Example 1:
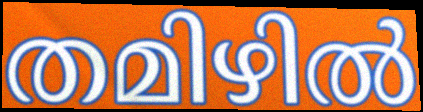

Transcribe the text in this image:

തമിഴിൽ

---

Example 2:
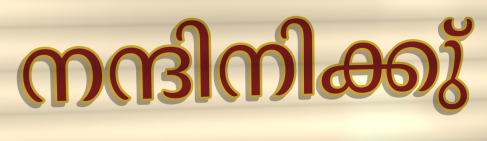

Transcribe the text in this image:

നന്ദിനിക്കു്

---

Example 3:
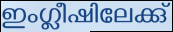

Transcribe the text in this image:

ഇംഗ്ലീഷിലേക്കു്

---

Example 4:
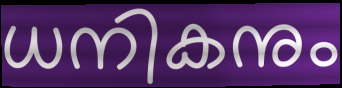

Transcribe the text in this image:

ധനികനും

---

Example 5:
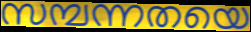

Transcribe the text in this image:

സമ്പന്നതയെ